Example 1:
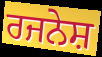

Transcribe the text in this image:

ਰਜਨੇਸ਼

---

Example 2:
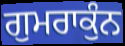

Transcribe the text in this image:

ਗੁਮਰਾਕੁੰਨ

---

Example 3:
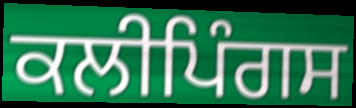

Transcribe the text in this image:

ਕਲੀਪਿੰਗਸ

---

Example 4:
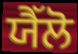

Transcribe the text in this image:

ਯੈੱਲੋ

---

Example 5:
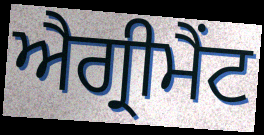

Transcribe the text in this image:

ਐਗ੍ਰੀਮੈਂਟ